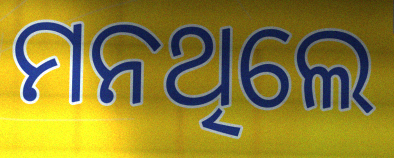
ମନଥିଲେ